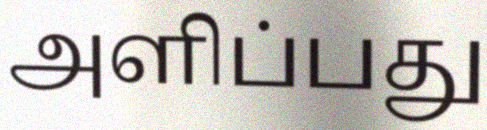
அளிப்பது